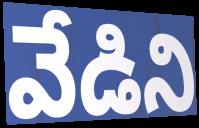
వేడిని